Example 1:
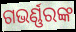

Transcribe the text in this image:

ଗଭର୍ଣ୍ଣରଙ୍କ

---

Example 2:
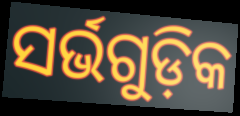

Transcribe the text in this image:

ସର୍ଭଗୁଡ଼ିକ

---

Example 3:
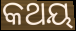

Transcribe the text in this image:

କଥୟ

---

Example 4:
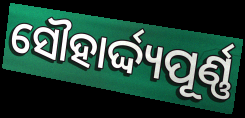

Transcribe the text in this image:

ସୌହାର୍ଦ୍ଦ୍ୟପୂର୍ଣ୍ଣ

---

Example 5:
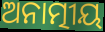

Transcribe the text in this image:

ଅନାତ୍ମୀୟ